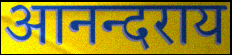
आनन्दराय